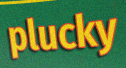
plucky